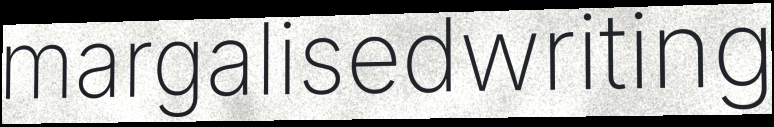
margalisedwriting